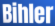
Bihler